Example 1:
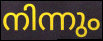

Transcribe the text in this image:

നിന്നും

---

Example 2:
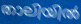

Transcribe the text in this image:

താലിയിൽ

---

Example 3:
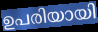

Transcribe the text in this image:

ഉപരിയായി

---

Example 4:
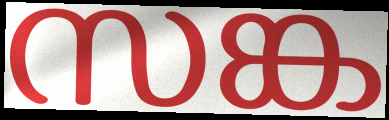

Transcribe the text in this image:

സങ്ക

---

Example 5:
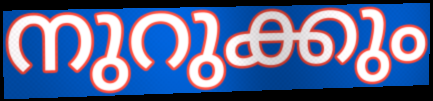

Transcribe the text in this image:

നുറുക്കും